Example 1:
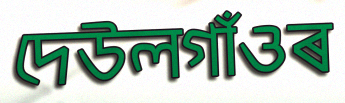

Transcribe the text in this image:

দেউলগাঁওৰ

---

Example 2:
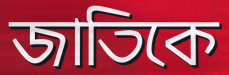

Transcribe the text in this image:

জাতিকে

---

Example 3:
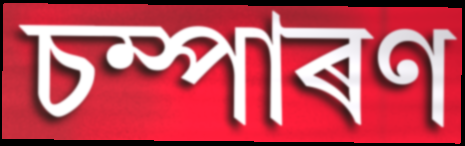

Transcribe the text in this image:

চম্পাৰণ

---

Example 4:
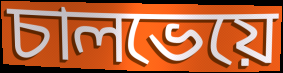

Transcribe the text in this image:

চালভেয়ে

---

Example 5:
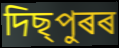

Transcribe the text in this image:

দিছ্পুৰৰ